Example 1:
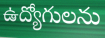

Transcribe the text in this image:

ఉద్యోగులను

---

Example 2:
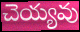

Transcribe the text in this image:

చెయ్యవు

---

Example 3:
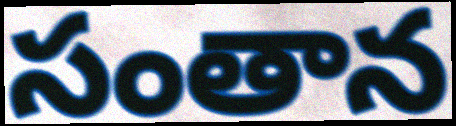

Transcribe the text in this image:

సంతాన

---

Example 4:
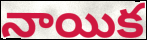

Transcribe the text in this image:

నాయిక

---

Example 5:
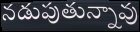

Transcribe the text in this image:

నడుపుతున్నావు